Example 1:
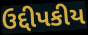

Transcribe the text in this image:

ઉદ્દીપકીય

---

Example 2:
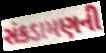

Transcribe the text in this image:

સંકડામણની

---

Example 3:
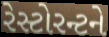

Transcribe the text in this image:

રેસ્ટોરન્ટને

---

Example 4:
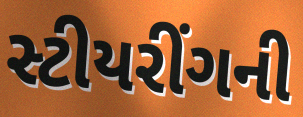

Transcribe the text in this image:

સ્ટીયરીંગની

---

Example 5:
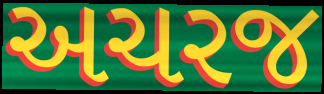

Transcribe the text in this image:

અચરજ